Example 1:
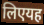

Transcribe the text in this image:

लिएयह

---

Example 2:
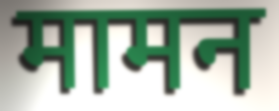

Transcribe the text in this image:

मामन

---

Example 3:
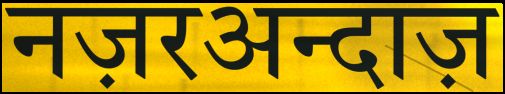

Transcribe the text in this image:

नज़रअन्दाज़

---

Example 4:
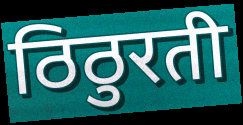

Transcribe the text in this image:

ठिठुरती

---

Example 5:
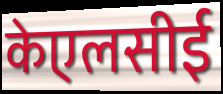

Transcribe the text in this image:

केएलसीई